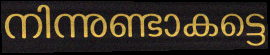
നിന്നുണ്ടാകട്ടെ